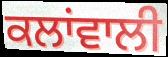
ਕਲਾਂਵਾਲੀ